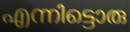
എന്നിട്ടൊരു